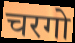
चरगो